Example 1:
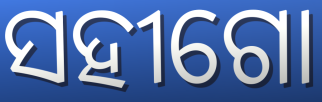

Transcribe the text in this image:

ସହୀଗୋ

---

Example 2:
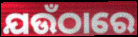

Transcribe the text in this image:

ଯଉଁଠାରେ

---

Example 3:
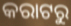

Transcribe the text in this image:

କରାଟରୁ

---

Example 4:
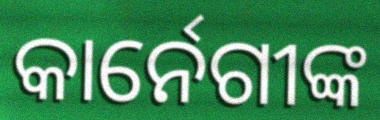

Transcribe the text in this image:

କାର୍ନେଗୀଙ୍କ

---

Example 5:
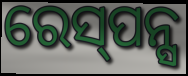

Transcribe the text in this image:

ରେସ୍‌ପନ୍ସ